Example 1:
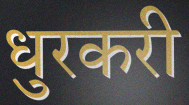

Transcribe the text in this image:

धुरकरी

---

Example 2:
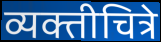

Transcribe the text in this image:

व्यक्तीचित्रे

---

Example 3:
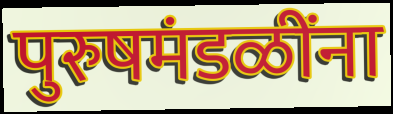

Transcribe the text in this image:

पुरुषमंडळींना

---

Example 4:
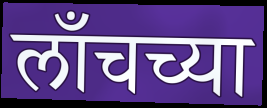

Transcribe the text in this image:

लाँचच्या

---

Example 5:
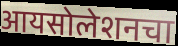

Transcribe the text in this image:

आयसोलेशनचा